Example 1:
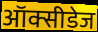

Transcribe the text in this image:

ऑक्सीडेज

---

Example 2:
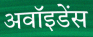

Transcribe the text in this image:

अवॉइडेंस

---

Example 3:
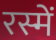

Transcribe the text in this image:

रस्‍में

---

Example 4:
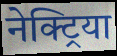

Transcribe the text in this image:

नेक्ट्रिया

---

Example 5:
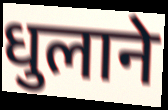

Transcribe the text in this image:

धुलाने